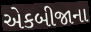
એકબીજાના